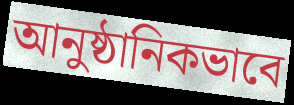
আনুষ্ঠানিকভাবে